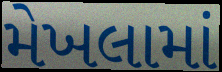
મેખલામાં